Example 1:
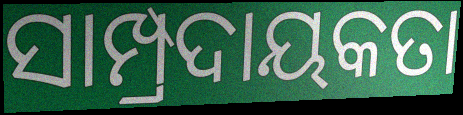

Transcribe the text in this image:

ସାମ୍ପ୍ରଦାୟକତା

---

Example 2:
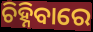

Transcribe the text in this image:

ଚିହ୍ନିବାରେ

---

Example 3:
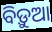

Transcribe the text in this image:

ବିଡ଼ୁଆ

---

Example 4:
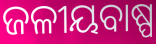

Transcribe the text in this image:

ଜଳୀୟବାଷ୍ପ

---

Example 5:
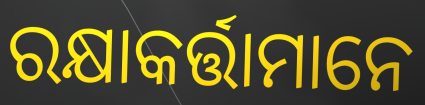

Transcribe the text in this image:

ରକ୍ଷାକର୍ତ୍ତାମାନେ